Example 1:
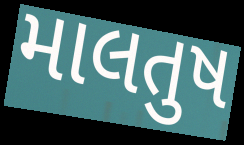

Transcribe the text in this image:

માલતુષ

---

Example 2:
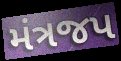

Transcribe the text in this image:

મંત્રજપ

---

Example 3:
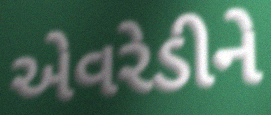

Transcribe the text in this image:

એવરેડીને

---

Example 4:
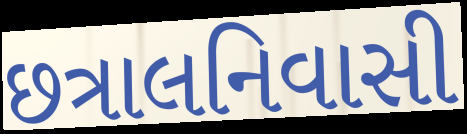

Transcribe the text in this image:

છત્રાલનિવાસી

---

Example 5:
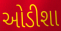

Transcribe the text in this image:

ઓડીશા